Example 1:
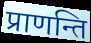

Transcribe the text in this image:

प्राणन्ति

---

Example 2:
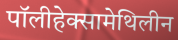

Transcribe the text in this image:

पॉलीहेक्सामेथिलीन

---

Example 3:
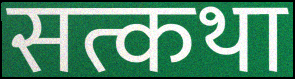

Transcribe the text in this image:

सत्कथा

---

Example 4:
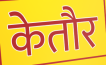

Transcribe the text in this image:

केतौर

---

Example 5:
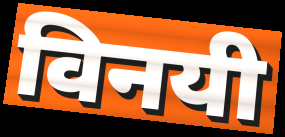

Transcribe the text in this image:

विनयी